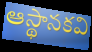
ఆస్థానకవి